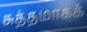
சுத்தமாகக்